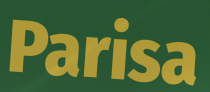
Parisa